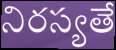
నిరస్యతే